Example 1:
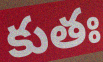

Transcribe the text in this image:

కుతః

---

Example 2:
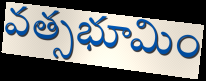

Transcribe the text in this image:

వత్సభూమిం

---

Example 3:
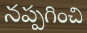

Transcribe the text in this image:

నప్పగించి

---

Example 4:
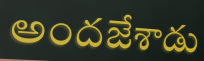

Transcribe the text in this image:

అందజేశాడు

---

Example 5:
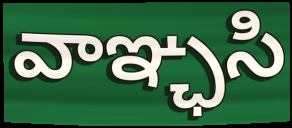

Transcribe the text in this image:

వాఞ్ఛసి